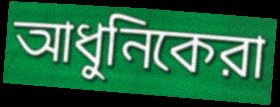
আধুনিকেরা